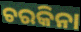
ଚରକିନା